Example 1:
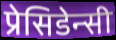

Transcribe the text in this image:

प्रेसिडेन्सी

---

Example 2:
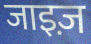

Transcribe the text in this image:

जाइज़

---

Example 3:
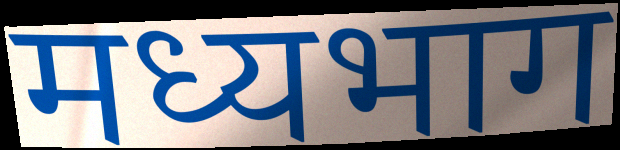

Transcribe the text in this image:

मध्यभाग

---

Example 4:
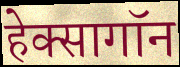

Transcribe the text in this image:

हेक्सागॉन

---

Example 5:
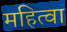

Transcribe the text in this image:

महित्वा